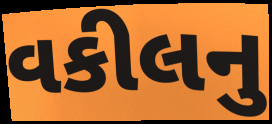
વકીલનુ